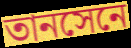
তানসেনে